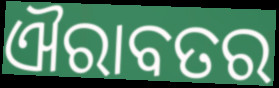
ଐରାବତର